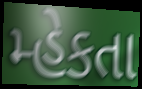
મ્હેકતા